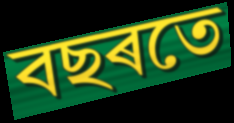
বছৰতে